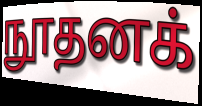
நூதனக்